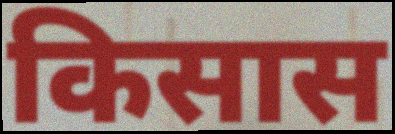
किसास